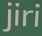
jiri